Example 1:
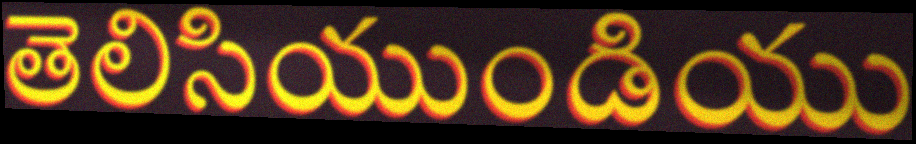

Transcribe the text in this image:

తెలిసియుండియు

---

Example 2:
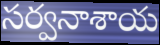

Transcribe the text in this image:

సర్వనాశాయ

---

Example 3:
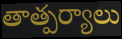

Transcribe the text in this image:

తాత్పర్యాలు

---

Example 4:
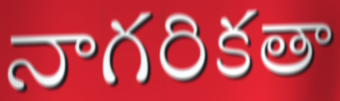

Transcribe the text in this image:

నాగరికతా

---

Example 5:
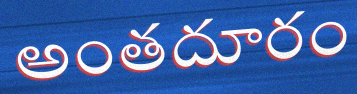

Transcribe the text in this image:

అంతదూరం